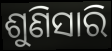
ଶୁଣିସାରି